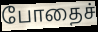
போதைச்